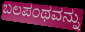
ಬಲಪಂಥವನ್ನು